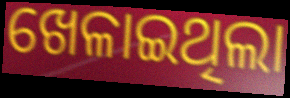
ଖେଳାଇଥିଲା